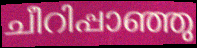
ചീറിപ്പാഞ്ഞു